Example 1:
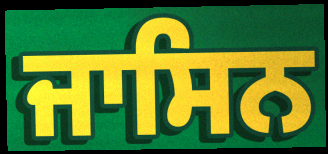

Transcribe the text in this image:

ਜਾਸਿਨ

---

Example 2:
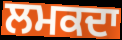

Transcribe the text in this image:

ਲਮਕਦਾ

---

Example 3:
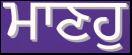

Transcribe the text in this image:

ਮਾਣਹੁ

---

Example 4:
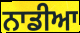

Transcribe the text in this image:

ਨਾਡੀਆ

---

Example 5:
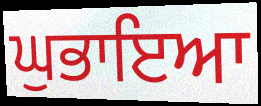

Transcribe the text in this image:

ਘੁਭਾਇਆ